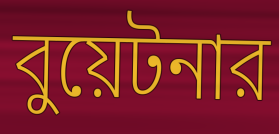
বুয়েটনার